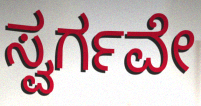
ಸ್ವರ್ಗವೇ